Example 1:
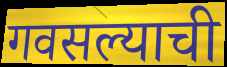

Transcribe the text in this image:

गवसल्याची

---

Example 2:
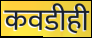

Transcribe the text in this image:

कवडीही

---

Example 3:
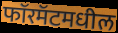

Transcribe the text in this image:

फॉरमॅटमधील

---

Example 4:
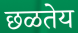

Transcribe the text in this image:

छळतेय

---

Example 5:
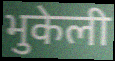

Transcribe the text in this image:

भुकेली